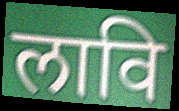
लावि